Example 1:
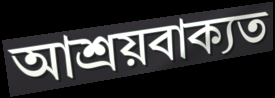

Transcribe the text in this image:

আশ্ৰয়বাক্য়ত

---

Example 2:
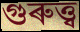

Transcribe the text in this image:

গুৰুত্ত্ব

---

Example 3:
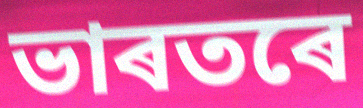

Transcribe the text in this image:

ভাৰতৰে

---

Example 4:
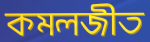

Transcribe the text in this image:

কমলজীত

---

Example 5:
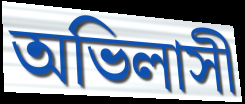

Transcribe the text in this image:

অভিলাসী